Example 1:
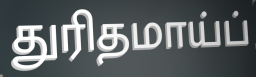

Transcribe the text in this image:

துரிதமாய்ப்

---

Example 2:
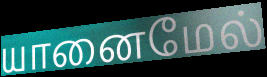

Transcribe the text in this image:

யானைமேல்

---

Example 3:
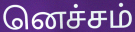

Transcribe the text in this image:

னெச்சம்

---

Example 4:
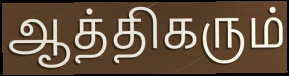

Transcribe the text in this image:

ஆத்திகரும்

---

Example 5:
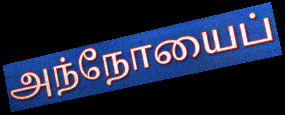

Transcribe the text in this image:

அந்நோயைப்